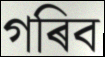
গৰিব